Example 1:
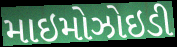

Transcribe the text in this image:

માઇમોઝોઇડી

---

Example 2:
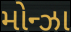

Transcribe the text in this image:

મોન્ઝા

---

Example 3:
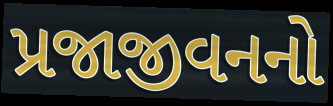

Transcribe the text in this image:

પ્રજાજીવનનો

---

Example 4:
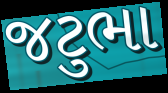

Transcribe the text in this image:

જટુભા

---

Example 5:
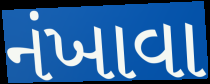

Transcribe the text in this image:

નંખાવા